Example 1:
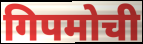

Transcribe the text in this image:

गिपमोची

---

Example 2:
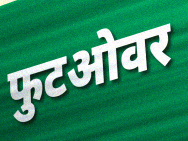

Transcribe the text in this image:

फुटओवर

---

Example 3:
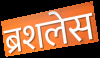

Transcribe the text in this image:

ब्रशलेस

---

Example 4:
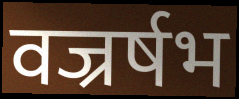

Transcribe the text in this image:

वज्रर्षभ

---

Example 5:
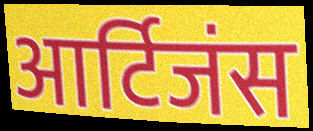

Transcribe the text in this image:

आर्टिजंस